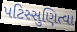
પટિસ્સુણિત્વા